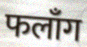
फलाँग